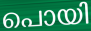
പൊയി